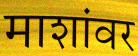
माशांवर